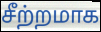
சீற்றமாக